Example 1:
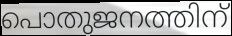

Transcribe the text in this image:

പൊതുജനത്തിന്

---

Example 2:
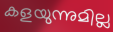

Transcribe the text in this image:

കളയുന്നുമില്ല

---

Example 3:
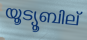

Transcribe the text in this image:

യൂട്യൂബില്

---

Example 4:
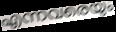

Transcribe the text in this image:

എന്നവരെയും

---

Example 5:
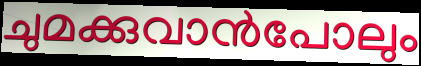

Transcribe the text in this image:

ചുമക്കുവാൻപോലും